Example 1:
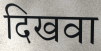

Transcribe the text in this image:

दिखवा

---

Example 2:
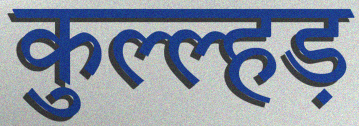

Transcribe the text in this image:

कुल्ल्हड़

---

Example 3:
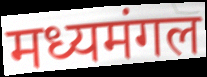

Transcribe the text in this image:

मध्यमंगल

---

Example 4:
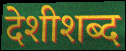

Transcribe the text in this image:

देशीशब्द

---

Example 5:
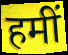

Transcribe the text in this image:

हमीं